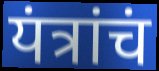
यंत्रांचं